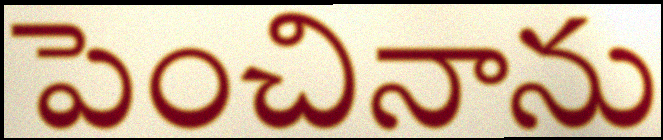
పెంచినాను